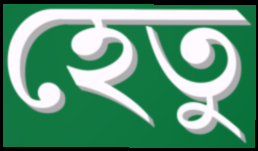
হেতু